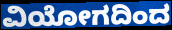
ವಿಯೋಗದಿಂದ